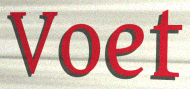
Voet